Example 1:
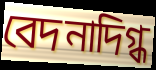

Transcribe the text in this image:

বেদনাদিগ্ধ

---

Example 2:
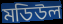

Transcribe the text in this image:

মডিউল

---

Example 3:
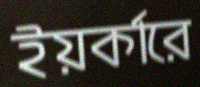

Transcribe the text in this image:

ইয়র্কারে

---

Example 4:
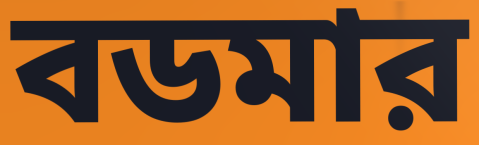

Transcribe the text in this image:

বডমার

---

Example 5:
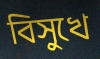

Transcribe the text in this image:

বিসুখে